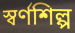
স্বর্ণশিল্প